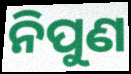
ନିପୁଣ